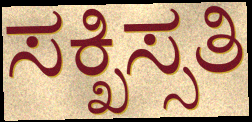
ಸಕ್ಖಿಸ್ಸತಿ